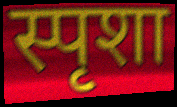
स्पृशा